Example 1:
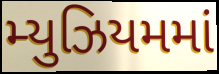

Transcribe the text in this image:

મ્યુઝિયમમાં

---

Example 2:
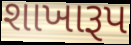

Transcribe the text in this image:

શાખારૂપ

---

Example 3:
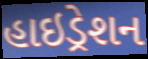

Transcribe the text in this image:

હાઇડ્રેશન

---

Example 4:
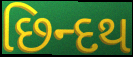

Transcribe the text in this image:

છિન્દથ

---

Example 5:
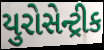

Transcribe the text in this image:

યુરોસેન્ટ્રીક